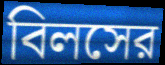
বিলসের